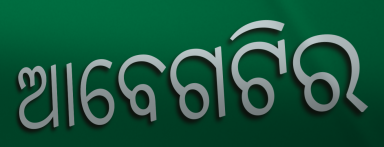
ଆବେଗଟିର